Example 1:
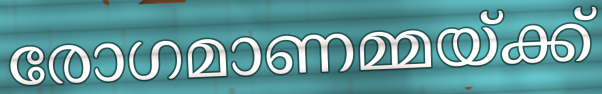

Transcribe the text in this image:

രോഗമാണമ്മയ്ക്ക്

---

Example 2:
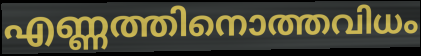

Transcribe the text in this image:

എണ്ണത്തിനൊത്തവിധം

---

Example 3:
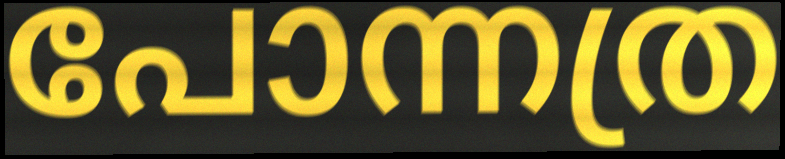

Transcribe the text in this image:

പോന്നത്ര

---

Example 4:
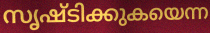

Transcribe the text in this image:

സൃഷ്ടിക്കുകയെന്ന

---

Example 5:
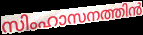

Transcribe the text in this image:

സിംഹാസനത്തിൻ